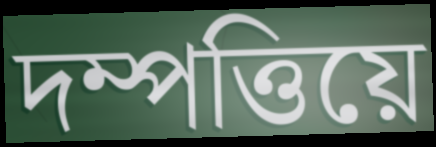
দম্পত্তিয়ে